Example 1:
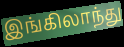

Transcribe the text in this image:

இங்கிலாந்து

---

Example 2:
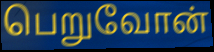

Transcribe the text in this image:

பெறுவோன்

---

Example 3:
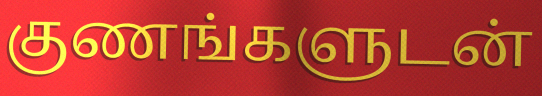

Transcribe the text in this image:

குணங்களுடன்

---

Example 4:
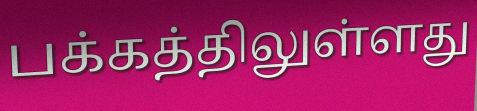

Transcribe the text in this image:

பக்கத்திலுள்ளது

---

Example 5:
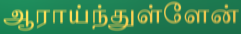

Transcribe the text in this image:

ஆராய்ந்துள்ளேன்